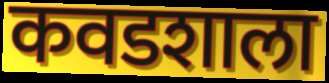
कवडशाला